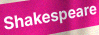
Shakespeare